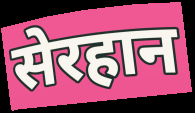
सेरहान